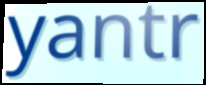
yantr